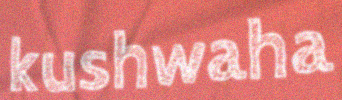
kushwaha